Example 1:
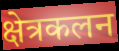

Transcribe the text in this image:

क्षेत्रकलन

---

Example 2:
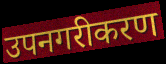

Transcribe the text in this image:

उपनगरीकरण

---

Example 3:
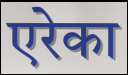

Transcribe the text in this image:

एरेका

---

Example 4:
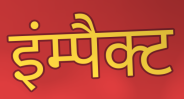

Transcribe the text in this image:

इंम्पैक्ट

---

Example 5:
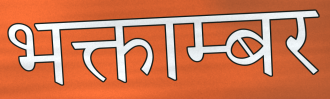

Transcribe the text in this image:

भक्ताम्बर